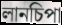
লানচিপা